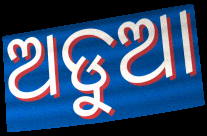
ଅଡୁଆ